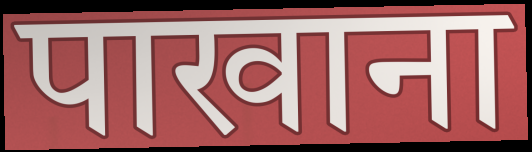
पाखाना